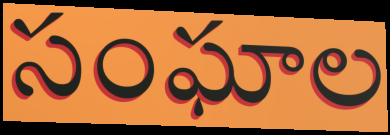
సంఘాల